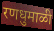
रणधुमाळी